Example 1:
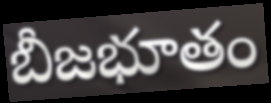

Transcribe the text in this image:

బీజభూతం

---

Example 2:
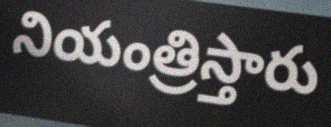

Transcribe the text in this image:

నియంత్రిస్తారు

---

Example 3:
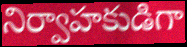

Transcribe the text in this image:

నిర్వాహకుడిగా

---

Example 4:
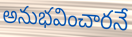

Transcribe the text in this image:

అనుభవించారనే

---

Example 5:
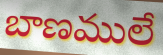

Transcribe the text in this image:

బాణములే